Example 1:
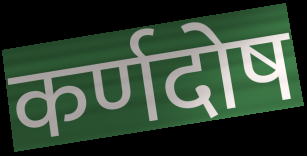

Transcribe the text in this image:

कर्णदोष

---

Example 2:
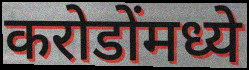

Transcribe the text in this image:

करोडोंमध्ये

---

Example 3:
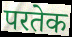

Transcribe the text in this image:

परतेक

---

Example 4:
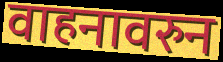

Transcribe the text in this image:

वाहनावरुन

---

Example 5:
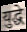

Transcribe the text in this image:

युद्धे